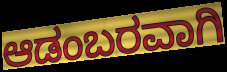
ಆಡಂಬರವಾಗಿ